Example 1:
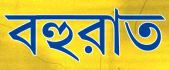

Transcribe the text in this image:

বহুরাত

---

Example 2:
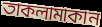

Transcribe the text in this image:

তাকলামাকান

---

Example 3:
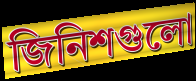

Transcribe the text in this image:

জিনিশগুলো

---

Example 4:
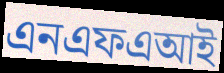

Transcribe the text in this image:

এনএফএআই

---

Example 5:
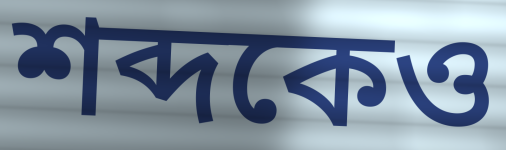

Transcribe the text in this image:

শব্দকেও